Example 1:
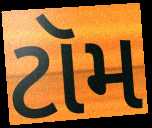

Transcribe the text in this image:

ટૉમ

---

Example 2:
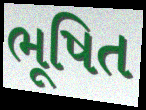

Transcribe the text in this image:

ભૂષિત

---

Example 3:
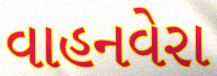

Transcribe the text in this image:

વાહનવેરા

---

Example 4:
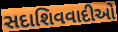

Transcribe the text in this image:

સદાશિવવાદીઓ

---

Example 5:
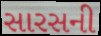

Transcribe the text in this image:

સારસની